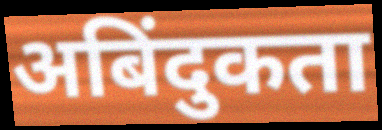
अबिंदुकता